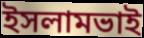
ইসলামভাই